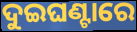
ଦୁଇଘଣ୍ଟାରେ